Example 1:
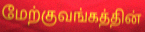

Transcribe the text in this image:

மேற்குவங்கத்தின்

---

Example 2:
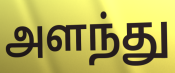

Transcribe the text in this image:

அளந்து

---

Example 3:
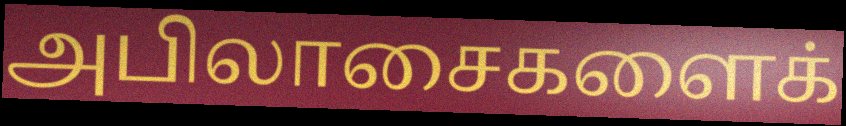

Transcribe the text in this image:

அபிலாசைகளைக்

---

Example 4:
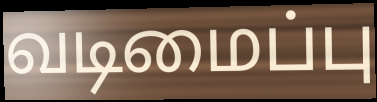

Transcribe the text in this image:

வடிமைப்பு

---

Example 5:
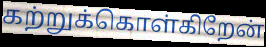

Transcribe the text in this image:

கற்றுக்கொள்கிறேன்